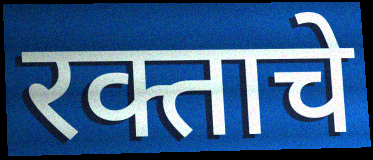
रक्ताचे